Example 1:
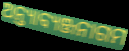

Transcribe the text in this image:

ଅନ୍ତ୍ୟାବ୍ୟଞ୍ଜନାଗମ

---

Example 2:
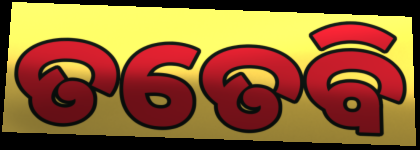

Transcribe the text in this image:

ତତେବି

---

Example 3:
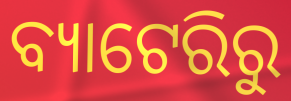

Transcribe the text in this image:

ବ୍ୟାଟେରିରୁ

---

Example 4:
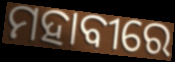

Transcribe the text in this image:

ମହାବୀରେ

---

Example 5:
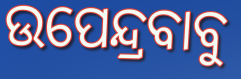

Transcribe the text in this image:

ଉପେନ୍ଦ୍ରବାବୁ